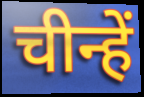
चीन्हें